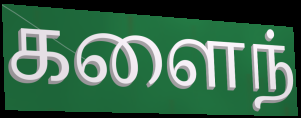
களைந்